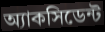
অ্যাকসিডেন্ট